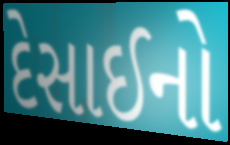
દેસાઈનો